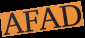
AFAD